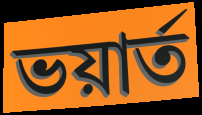
ভয়ার্ত